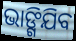
ଭାଙ୍ଗିଯିବ